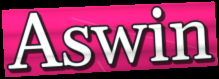
Aswin